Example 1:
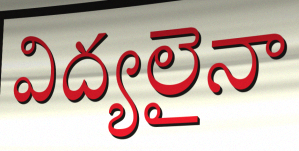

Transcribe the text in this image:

విద్యలైనా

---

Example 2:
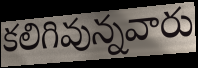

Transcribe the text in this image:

కలిగివున్నవారు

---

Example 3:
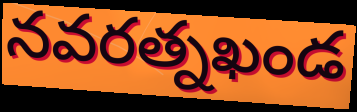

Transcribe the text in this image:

నవరత్నఖండ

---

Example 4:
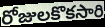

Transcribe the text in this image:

రోజులకొకసారి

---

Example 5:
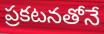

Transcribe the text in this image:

ప్రకటనతోనే